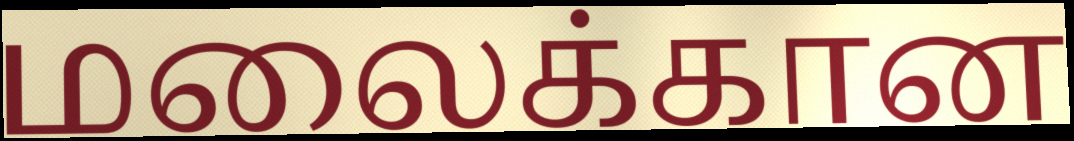
மலைக்கான